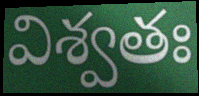
విశ్వతః